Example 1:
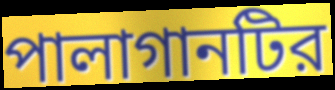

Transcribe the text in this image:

পালাগানটির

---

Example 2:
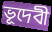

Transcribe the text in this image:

ভূদেবী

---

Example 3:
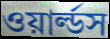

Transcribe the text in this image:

ওয়ার্ল্ডস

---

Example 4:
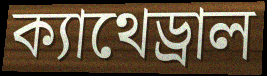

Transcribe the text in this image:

ক্যাথেড্রাল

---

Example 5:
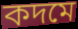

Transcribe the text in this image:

কদমে